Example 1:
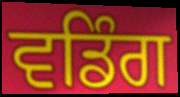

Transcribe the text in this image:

ਵਡਿੰਗ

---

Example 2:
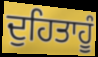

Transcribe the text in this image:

ਦੁਹਿਤਾਹੂੰ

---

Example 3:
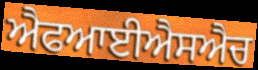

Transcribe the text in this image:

ਐਫਆਈਐਸਐਚ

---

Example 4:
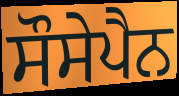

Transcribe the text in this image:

ਸੌਸੇਪੈਨ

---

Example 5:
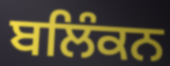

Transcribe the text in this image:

ਬਲਿੰਕਨ